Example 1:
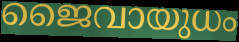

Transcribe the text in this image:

ജൈവായുധം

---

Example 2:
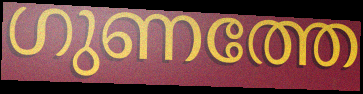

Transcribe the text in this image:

ഗുണത്തേ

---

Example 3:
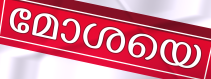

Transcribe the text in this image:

മോശയെ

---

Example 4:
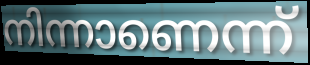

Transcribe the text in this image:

നിന്നാണെന്ന്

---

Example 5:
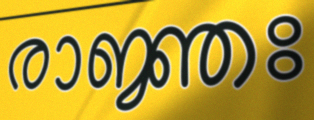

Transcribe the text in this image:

രാജ്ഞഃ